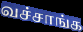
வச்சாங்க